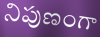
నిపుణంగా